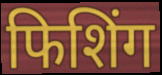
फिशिंग